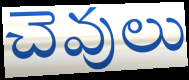
చెవులు